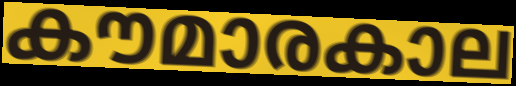
കൗമാരകാല